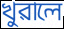
খুৱালে